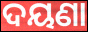
ଦୟଣା